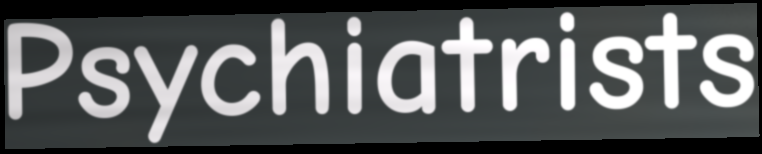
Psychiatrists